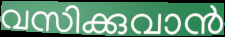
വസിക്കുവാൻ